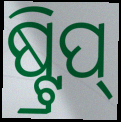
ଷ୍ଟ୍ରିପ୍